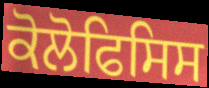
ਕੋਲੋਫਿਸਿਸ